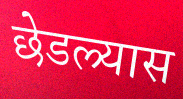
छेडल्यास